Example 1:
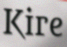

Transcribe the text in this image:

Kire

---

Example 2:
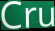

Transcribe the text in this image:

Cru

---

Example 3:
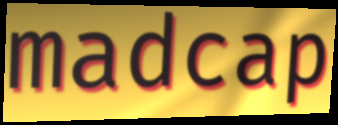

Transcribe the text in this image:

madcap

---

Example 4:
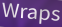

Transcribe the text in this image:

Wraps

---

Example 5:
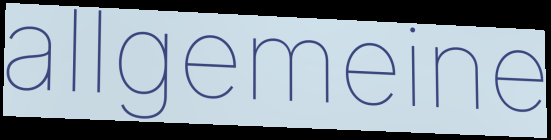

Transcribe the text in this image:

allgemeine